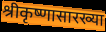
श्रीकृष्णासारख्या